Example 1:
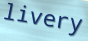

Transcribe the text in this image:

livery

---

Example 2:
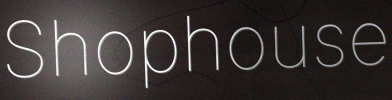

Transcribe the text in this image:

Shophouse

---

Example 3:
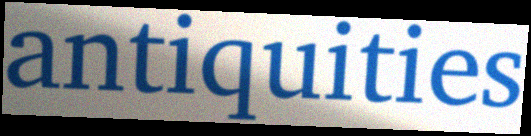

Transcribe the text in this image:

antiquities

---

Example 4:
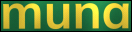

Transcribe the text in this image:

muna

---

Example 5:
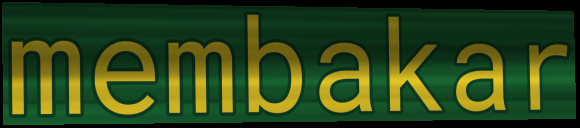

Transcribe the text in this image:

membakar